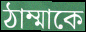
ঠাম্মাকে